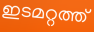
ഇടമറ്റത്ത്